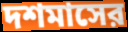
দশমাসের